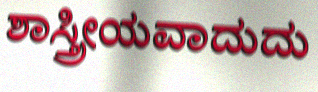
ಶಾಸ್ತ್ರೀಯವಾದುದು